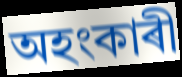
অহংকাৰী